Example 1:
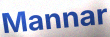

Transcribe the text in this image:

Mannar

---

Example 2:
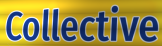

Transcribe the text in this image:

Collective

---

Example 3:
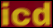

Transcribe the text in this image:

icd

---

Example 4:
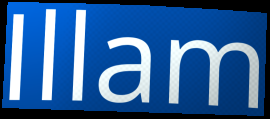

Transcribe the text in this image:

Illam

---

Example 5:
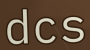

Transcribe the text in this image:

dcs